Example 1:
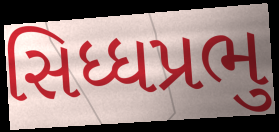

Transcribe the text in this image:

સિધ્ધપ્રભુ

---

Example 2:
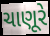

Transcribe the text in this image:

ચાણૂરે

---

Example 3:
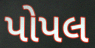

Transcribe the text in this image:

પોપલ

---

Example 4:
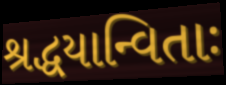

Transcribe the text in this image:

શ્રદ્ધયાન્વિતાઃ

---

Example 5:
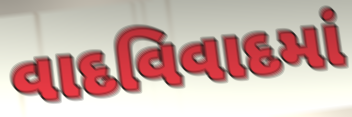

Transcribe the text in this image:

વાદવિવાદમાં